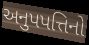
અનુપપત્તિનો